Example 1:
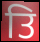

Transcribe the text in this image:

उि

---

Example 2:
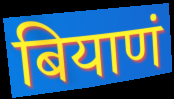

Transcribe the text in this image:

बियाणं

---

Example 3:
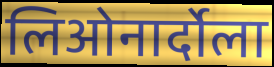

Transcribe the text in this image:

लिओनार्दोला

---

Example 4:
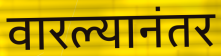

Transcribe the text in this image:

वारल्यानंतर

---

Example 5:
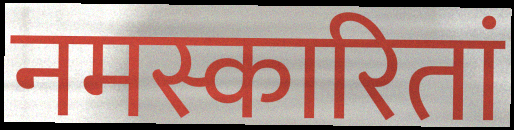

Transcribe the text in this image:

नमस्कारितां